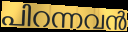
പിറന്നവൻ